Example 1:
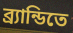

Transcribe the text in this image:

ব্র্যান্ডিতে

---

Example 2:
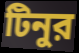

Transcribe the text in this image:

টিনুর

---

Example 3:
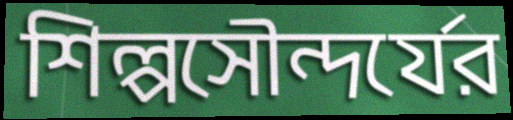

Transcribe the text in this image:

শিল্পসৌন্দর্যের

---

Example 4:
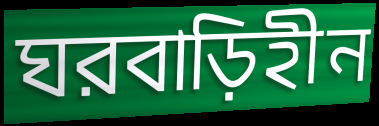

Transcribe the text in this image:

ঘরবাড়িহীন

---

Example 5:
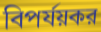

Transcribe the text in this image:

বিপর্যয়কর